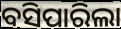
ବସିପାରିଲା